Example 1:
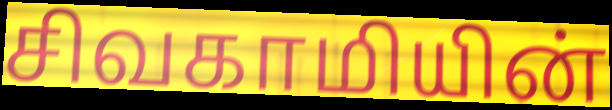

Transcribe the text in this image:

சிவகாமியின்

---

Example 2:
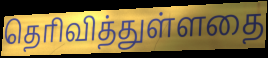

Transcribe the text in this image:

தெரிவித்துள்ளதை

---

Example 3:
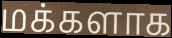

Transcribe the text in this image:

மக்களாக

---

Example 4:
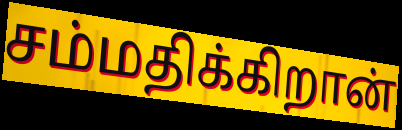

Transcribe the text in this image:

சம்மதிக்கிறான்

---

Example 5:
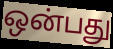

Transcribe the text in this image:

ஒன்பது